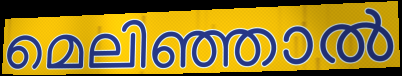
മെലിഞ്ഞാൽ